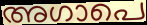
അഗാപെ